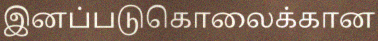
இனப்படுகொலைக்கான